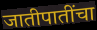
जातीपातींचा